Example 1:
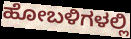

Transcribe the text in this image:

ಹೋಬಳಿಗಳಲ್ಲಿ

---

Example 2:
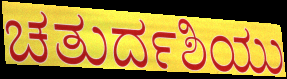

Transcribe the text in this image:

ಚತುರ್ದಶಿಯು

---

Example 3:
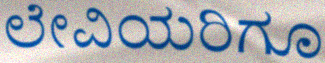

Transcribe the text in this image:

ಲೇವಿಯರಿಗೂ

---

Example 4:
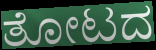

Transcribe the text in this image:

ತೋಟದ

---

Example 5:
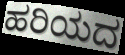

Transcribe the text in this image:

ಹರಿಯದ